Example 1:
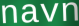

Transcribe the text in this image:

navn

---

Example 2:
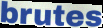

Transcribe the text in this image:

brutes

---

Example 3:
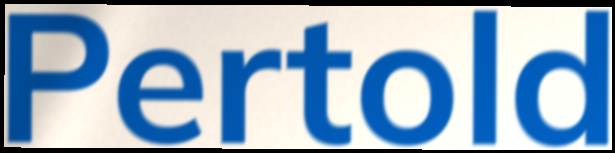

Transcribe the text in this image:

Pertold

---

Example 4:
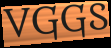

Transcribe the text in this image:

VGGS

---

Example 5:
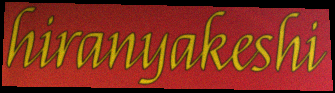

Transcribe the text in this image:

hiranyakeshi